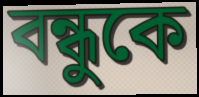
বন্ধুকে